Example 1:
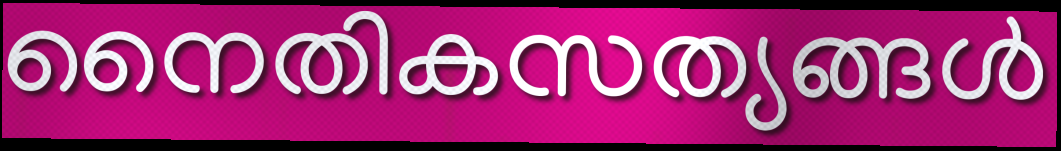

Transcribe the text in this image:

നൈതികസത്യങ്ങൾ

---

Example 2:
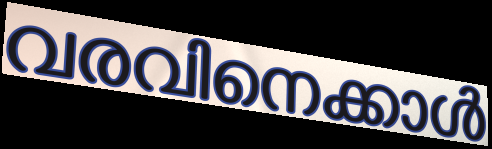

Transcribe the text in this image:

വരവിനെക്കാൾ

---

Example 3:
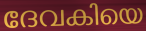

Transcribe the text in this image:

ദേവകിയെ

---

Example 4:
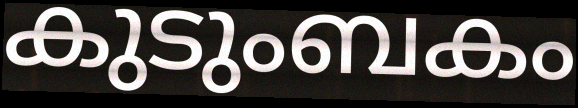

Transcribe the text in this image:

കുടുംബകം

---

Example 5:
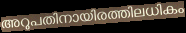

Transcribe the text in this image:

അറുപതിനായിരത്തിലധികം